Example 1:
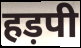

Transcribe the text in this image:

हड़पी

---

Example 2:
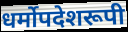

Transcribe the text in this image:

धर्मोपदेशरूपी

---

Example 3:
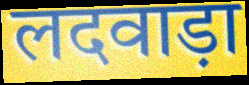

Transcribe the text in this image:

लदवाड़ा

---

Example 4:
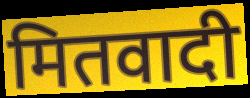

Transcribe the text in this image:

मितवादी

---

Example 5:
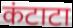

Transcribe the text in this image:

कंटाटा